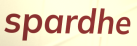
spardhe